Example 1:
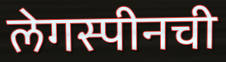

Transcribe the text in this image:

लेगस्पीनची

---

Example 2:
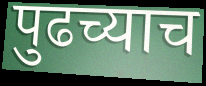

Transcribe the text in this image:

पुढच्याच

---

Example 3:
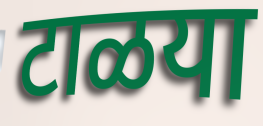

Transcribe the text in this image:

टाळया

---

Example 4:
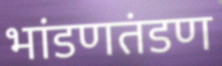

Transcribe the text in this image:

भांडणतंडण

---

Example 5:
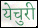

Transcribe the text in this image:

येचुरी